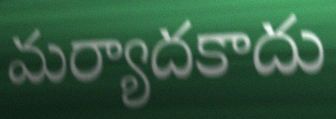
మర్యాదకాదు